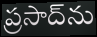
ప్రసాద్‌ను